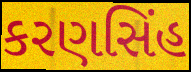
કરણસિંહ